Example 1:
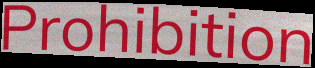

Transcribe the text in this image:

Prohibition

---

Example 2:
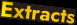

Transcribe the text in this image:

Extracts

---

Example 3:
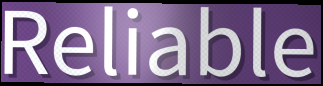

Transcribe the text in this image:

Reliable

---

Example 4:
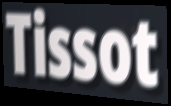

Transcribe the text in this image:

Tissot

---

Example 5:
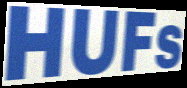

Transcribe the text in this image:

HUFs